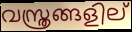
വസ്ത്രങ്ങളില്